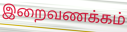
இறைவணக்கம்